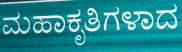
ಮಹಾಕೃತಿಗಳಾದ